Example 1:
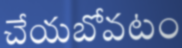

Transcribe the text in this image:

చేయబోవటం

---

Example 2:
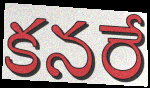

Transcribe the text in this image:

కనరే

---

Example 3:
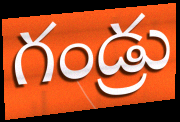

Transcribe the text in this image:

గండ్రు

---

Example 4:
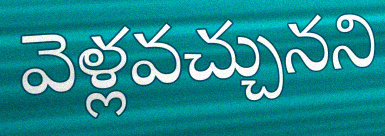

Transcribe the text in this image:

వెళ్లవచ్చునని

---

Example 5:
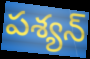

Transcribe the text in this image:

పశ్యన్